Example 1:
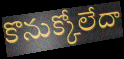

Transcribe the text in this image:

కొనుక్కోలేదా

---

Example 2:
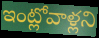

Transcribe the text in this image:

ఇంట్లోవాళ్లని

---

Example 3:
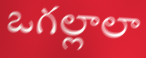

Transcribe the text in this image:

ఒగల్లాలా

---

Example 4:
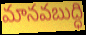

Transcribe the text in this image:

మానవబుద్ధి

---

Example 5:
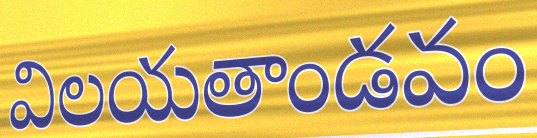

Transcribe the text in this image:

విలయతాండవం